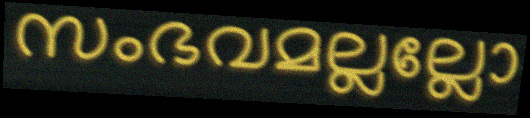
സംഭവമല്ലല്ലോ